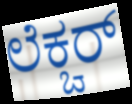
ಲೆಕ್ಚರ್